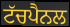
ਟੱਚਪੈਨਲ